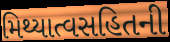
મિથ્યાત્વસહિતની